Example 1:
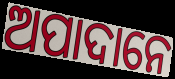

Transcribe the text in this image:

ଅପାଦାନେ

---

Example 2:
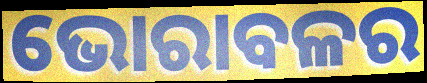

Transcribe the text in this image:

ଭୋରାବଳର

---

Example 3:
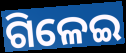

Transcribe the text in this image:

ଗିଳେଇ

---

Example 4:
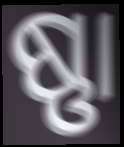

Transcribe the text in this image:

ଷ୍ଣା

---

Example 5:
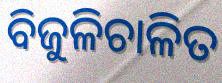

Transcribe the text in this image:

ବିଜୁଳିଚାଳିତ